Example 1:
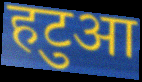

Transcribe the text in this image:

हटुआ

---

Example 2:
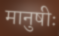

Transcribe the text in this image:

मानुषीः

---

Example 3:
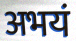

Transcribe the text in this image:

अभयं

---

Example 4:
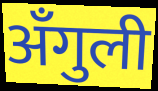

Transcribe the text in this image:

अँगुली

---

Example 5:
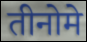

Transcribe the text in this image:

तीनोमे